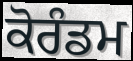
ਕੋਰੰਡਮ